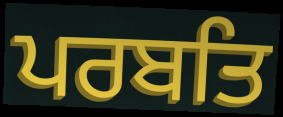
ਪਰਬਤਿ